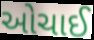
ઓચાઈ